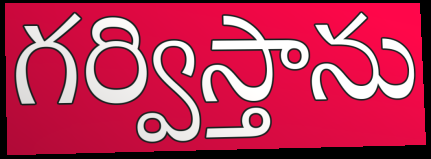
గర్విస్తాను